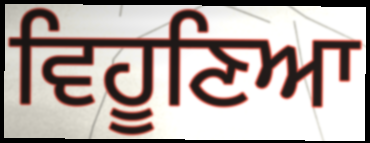
ਵਿਹੂਣਿਆ